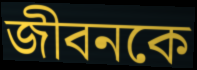
জীবনকে